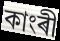
কাংৰী